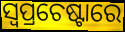
ସ୍ଵପ୍ରଚେଷ୍ଟାରେ